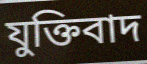
যুক্তিবাদ